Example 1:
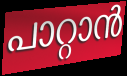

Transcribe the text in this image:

പാറ്റാൻ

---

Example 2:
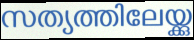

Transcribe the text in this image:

സത്യത്തിലേയ്ക്കു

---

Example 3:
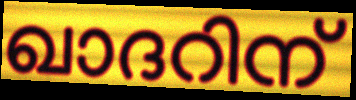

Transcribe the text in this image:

ഖാദറിന്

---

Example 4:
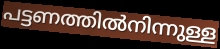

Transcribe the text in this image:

പട്ടണത്തിൽനിന്നുള്ള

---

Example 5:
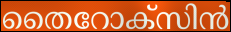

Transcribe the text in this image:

തൈറോക്സിൻ